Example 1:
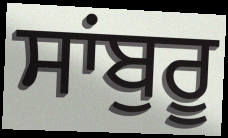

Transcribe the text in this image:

ਸਾਂਬੁਰੂ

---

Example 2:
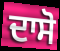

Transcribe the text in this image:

ਦਾਸੋ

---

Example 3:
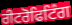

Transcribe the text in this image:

ਰੀਟਰੋਫਿਟਿੰਗ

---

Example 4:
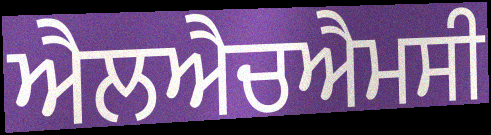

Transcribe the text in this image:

ਐਲਐਚਐਮਸੀ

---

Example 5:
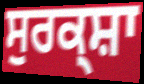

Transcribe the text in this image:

ਸੁਰਕ੍ਸ਼ਾ